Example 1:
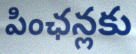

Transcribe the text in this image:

పింఛన్లకు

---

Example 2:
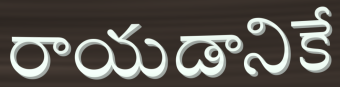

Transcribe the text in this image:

రాయడానికే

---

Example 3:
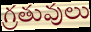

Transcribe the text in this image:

గ్రతువులు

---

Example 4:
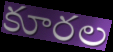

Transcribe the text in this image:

కూరల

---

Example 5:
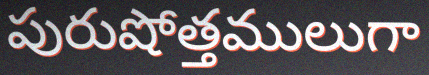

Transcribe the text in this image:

పురుషోత్తములుగా